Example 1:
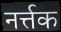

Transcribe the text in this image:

नर्त्तक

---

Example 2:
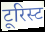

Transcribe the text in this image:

टूरिस्ट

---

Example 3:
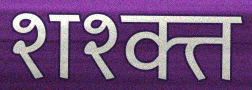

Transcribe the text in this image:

शश्क्त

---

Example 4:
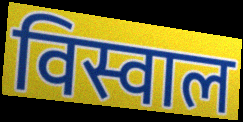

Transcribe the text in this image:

विस्वाल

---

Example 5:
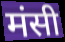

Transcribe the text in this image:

मंसी